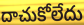
దాచుకోలేదు